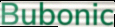
Bubonic